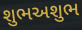
શુભઅશુભ